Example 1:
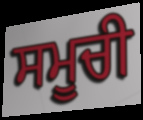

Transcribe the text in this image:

ਸਮੂਚੀ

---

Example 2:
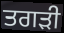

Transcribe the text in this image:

ਤਗੜੀ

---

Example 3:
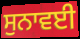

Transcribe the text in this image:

ਸੁਨਾਵਈ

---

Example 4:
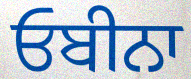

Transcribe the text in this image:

ਓਬੀਨਾ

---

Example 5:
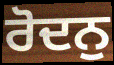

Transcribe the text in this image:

ਰੋਦਨੁ